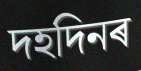
দহদিনৰ